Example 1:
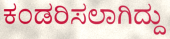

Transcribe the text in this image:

ಕಂಡರಿಸಲಾಗಿದ್ದು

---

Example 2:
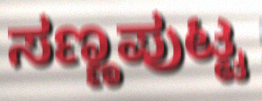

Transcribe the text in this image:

ಸಣ್ಣಪುಟ್ಟ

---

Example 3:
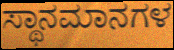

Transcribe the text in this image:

ಸ್ಥಾನಮಾನಗಳ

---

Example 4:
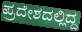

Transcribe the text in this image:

ಪ್ರದೇಶದಲ್ಲಿದ್ದ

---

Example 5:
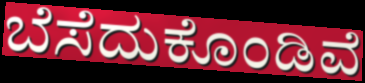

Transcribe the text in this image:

ಬೆಸೆದುಕೊಂಡಿವೆ